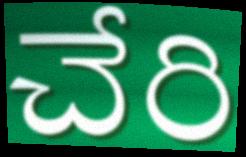
చేరి